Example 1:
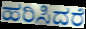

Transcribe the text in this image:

ಹರಿಸಿದರೆ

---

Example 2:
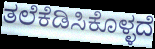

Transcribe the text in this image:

ತಲೆಕೆಡಿಸಿಕೊಳ್ಳದೆ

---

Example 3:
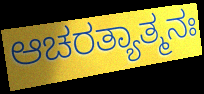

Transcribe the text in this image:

ಆಚರತ್ಯಾತ್ಮನಃ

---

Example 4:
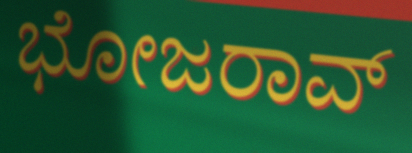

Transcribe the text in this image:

ಭೋಜರಾವ್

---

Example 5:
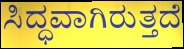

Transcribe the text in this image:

ಸಿದ್ಧವಾಗಿರುತ್ತದೆ